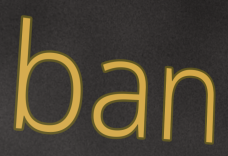
ban